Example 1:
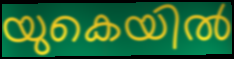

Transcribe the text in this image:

യുകെയിൽ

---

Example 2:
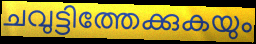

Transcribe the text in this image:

ചവുട്ടിത്തേക്കുകയും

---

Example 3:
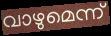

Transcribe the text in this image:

വാഴുമെന്ന്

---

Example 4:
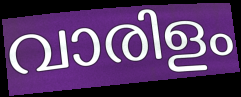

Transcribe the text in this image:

വാരിളം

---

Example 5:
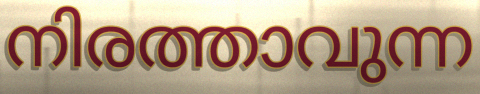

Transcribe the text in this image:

നിരത്താവുന്ന